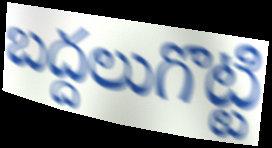
బద్దలుగొట్టి